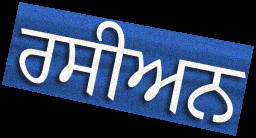
ਰਸੀਅਨ